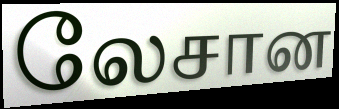
லேசான